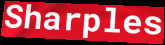
Sharples